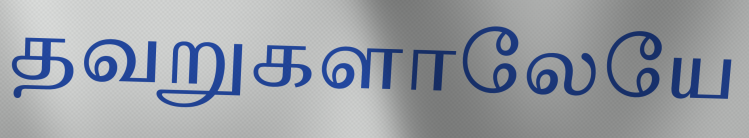
தவறுகளாலேயே